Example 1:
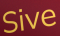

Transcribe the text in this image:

Sive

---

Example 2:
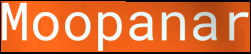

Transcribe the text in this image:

Moopanar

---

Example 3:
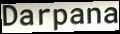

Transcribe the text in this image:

Darpana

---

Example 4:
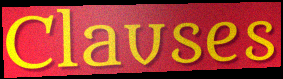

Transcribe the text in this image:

Clauses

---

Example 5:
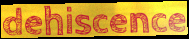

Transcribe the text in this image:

dehiscence